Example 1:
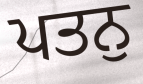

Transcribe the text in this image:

ਪਤਨੁ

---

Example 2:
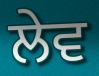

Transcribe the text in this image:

ਲੇਵ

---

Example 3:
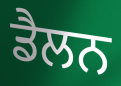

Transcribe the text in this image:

ਡੈਲਨ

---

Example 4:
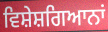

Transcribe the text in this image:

ਵਿਸ਼ੇਸ਼ਗਿਆਨਾਂ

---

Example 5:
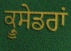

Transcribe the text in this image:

ਕ੍ਰੂਸੇਡਰਾਂ